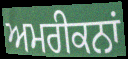
ਅਮਰੀਕਨਾਂ